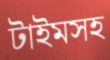
টাইমসহ